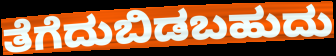
ತೆಗೆದುಬಿಡಬಹುದು